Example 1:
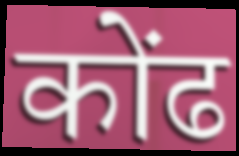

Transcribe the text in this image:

कोंढ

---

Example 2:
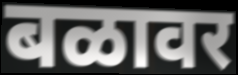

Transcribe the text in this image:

बळावर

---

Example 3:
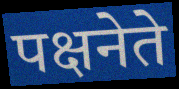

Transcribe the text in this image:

पक्षनेते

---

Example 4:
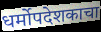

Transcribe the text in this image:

धर्मोपदेशकाचा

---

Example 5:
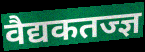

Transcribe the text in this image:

वैद्यकतज्ज्ञ